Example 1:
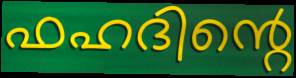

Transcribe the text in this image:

ഫഹദിന്റെ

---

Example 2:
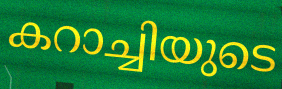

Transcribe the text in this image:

കറാച്ചിയുടെ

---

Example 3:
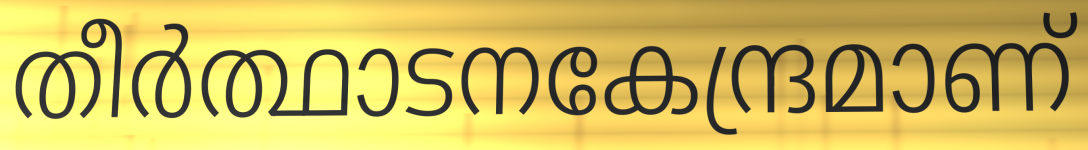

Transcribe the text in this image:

തീർത്ഥാടനകേന്ദ്രമാണ്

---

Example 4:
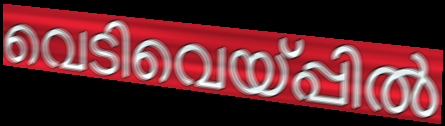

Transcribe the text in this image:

വെടിവെയ്പ്പിൽ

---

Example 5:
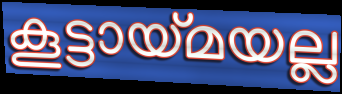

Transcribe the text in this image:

കൂട്ടായ്മയല്ല